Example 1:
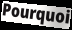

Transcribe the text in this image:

Pourquoi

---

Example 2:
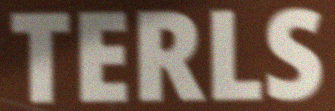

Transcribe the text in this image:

TERLS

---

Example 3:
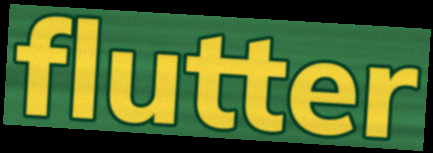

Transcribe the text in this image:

flutter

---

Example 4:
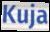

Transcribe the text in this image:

Kuja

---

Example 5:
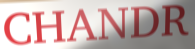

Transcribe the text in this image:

CHANDR